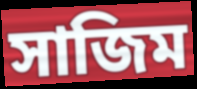
সাজিম